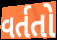
વર્તતો